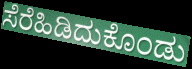
ಸೆರೆಹಿಡಿದುಕೊಂಡು